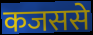
कजससे